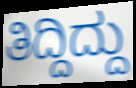
ತಿದ್ದಿದ್ದು